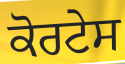
ਕੋਰਟੇਸ